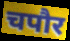
चपौर